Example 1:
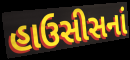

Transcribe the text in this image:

હાઉસીસનાં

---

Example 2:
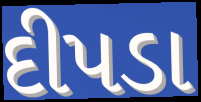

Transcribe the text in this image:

દીપડા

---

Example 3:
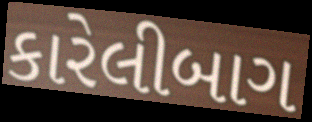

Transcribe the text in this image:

કારેલીબાગ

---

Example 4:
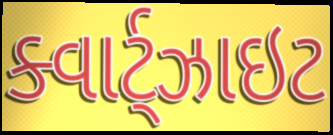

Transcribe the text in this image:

ક્વાર્ટ્ઝાઇટ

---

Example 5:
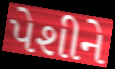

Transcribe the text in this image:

પેશીને